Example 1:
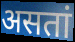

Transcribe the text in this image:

असतां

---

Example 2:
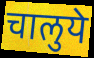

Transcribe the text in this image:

चालुये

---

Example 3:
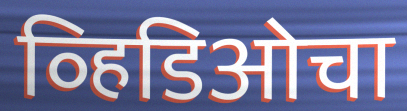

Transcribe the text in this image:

व्हिडिओचा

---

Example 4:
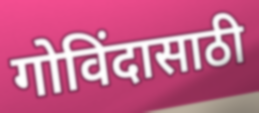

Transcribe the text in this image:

गोविंदासाठी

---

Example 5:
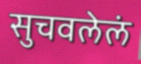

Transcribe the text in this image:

सुचवलेलं